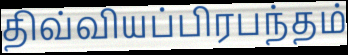
திவ்வியப்பிரபந்தம்